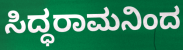
ಸಿದ್ಧರಾಮನಿಂದ